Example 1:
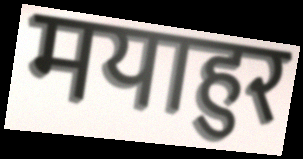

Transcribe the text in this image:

मयाहुर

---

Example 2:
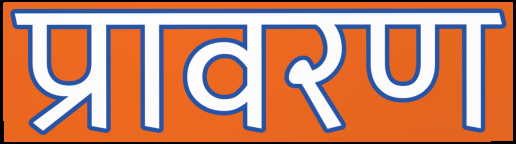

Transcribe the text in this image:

प्रावरण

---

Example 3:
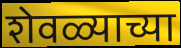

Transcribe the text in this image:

शेवळ्याच्या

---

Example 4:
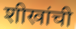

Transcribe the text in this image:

शीखांची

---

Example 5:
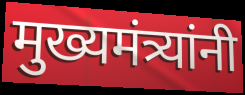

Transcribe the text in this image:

मुख्यमंत्र्यांनी